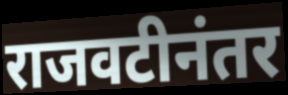
राजवटीनंतर